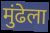
मुंढेला